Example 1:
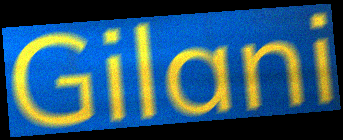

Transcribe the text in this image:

Gilani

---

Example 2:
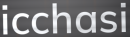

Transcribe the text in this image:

icchasi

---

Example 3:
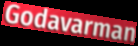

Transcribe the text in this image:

Godavarman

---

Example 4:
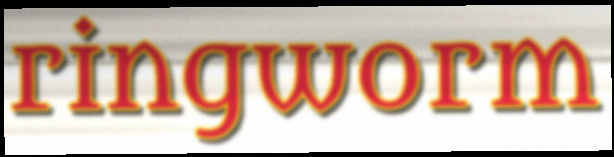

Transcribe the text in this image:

ringworm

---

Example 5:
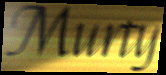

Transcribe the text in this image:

Murty